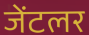
जेंटलर